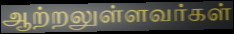
ஆற்றலுள்ளவர்கள்